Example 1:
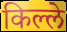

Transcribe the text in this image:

किल्ले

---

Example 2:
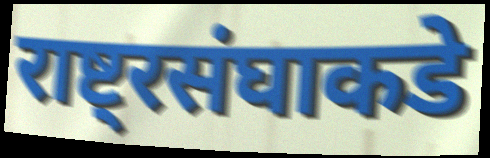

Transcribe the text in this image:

राष्ट्रसंघाकडे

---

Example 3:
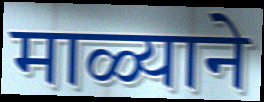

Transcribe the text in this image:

माळ्याने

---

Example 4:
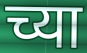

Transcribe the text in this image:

च्या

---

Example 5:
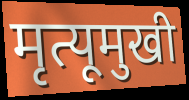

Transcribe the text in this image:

मृत्यूमुखी